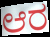
ಆರ